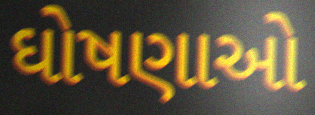
ઘોષણાઓ